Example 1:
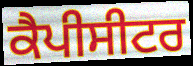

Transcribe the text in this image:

ਕੈਪੀਸੀਟਰ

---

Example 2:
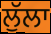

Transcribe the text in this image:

ਲੁੱਲਾ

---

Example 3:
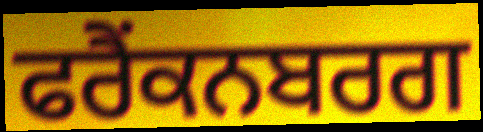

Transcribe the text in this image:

ਫਰੈਂਕਨਬਰਗ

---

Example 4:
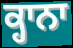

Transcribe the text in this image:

ਕ੍ਹਾਨਾ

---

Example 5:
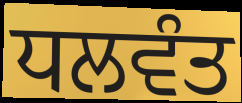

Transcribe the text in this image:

ਧਲਵੰਤ